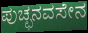
ಪುಚ್ಛನವಸೇನ